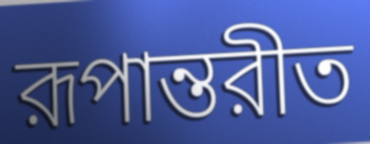
রূপান্তরীত